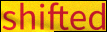
shifted